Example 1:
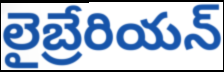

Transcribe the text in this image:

లైబ్రేరియన్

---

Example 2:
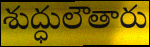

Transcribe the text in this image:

శుద్ధులౌతారు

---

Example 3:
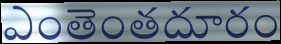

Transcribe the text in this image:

ఎంతెంతదూరం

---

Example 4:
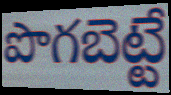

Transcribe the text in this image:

పొగబెట్టే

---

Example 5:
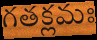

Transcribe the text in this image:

గతక్లమః